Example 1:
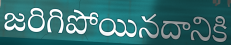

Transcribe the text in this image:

జరిగిపోయినదానికి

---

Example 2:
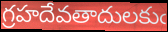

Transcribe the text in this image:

గ్రహదేవతాదులకుఁ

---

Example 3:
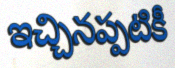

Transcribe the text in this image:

ఇచ్చినప్పటికీ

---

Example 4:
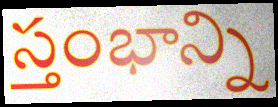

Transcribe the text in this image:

స్తంభాన్ని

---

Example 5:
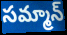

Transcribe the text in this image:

సమ్మాన్